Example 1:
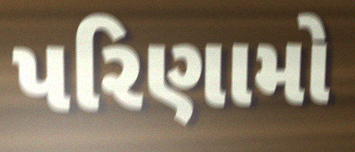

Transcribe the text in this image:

પરિણામો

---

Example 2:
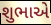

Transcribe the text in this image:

શુભાએ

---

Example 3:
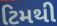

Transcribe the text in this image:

ટિમથી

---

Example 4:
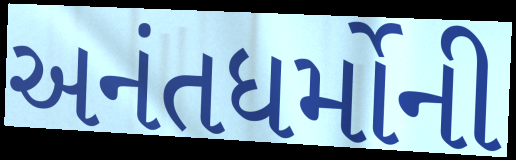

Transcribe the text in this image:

અનંતધર્મોની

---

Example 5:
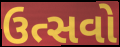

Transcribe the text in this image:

ઉત્સવો